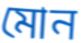
মোন